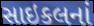
સાઇકલનાં